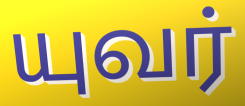
யுவர்